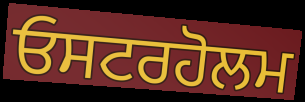
ਓਸਟਰਹੋਲਮ